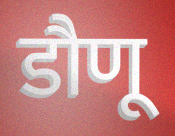
डौणू